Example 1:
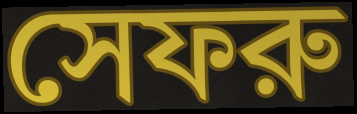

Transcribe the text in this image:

সেফরু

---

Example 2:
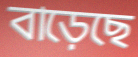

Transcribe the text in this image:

বাড়েছে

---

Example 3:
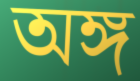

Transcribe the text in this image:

অঙ্গ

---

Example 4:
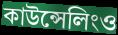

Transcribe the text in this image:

কাউন্সেলিংও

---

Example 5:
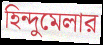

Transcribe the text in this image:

হিন্দুমেলার